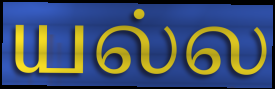
யல்ல